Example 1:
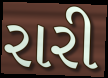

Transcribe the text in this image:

રારી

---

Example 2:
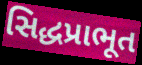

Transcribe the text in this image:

સિદ્ધપ્રાભૂત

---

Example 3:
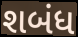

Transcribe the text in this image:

શબંધ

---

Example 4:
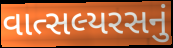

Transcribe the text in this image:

વાત્સલ્યરસનું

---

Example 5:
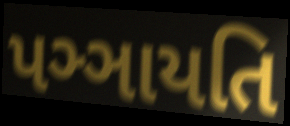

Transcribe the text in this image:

પઞ્ઞાયતિ